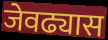
जेवढ्यास